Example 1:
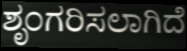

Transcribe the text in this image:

ಶೃಂಗರಿಸಲಾಗಿದೆ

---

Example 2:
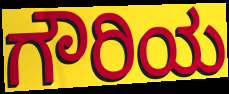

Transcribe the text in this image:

ಗೌರಿಯ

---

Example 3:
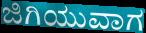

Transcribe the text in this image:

ಜಿಗಿಯುವಾಗ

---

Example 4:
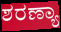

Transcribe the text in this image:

ಶರಣ್ಯಾ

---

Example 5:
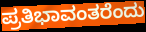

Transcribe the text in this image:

ಪ್ರತಿಭಾವಂತರೆಂದು